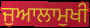
ਜੁਆਲਾਮੁਖੀ